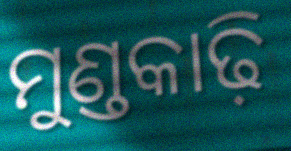
ମୁଣ୍ଡକାଢ଼ି